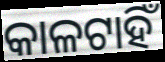
କାଳଟାହିଁ